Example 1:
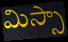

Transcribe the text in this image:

మిస్సా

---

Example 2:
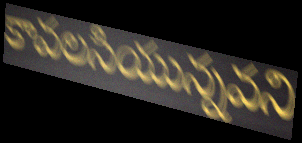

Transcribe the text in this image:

కావలసియున్నవని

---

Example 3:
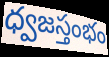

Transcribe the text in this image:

ధ్వజస్తంభం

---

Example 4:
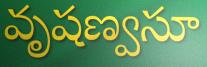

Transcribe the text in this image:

వృషణ్వసూ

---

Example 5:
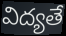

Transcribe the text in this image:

విద్యతే